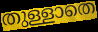
തുള്ളാതെ